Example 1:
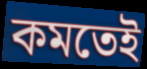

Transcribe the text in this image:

কমতেই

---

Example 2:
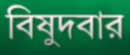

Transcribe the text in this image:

বিষুদবার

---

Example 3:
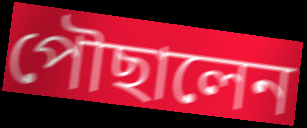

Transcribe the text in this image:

পৌছালেন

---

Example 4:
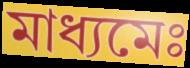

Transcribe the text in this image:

মাধ্যমেঃ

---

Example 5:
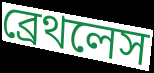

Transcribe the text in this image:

ব্রেথলেস